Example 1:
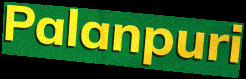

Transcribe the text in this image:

Palanpuri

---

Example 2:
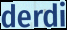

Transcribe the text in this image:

derdi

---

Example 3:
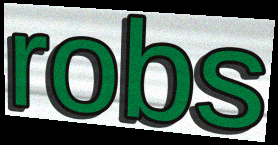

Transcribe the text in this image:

robs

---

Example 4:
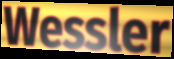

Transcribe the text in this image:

Wessler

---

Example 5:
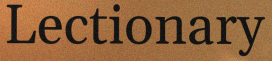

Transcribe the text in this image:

Lectionary